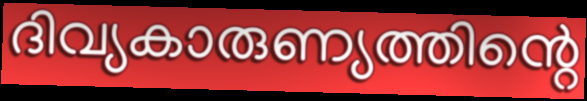
ദിവ്യകാരുണ്യത്തിന്റെ